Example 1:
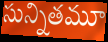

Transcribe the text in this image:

సున్నితమూ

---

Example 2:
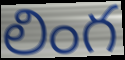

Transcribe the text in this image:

లింగ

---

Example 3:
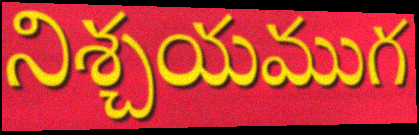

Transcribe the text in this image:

నిశ్చయముగ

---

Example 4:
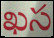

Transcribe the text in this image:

ఖస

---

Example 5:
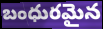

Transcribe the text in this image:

బంధురమైన